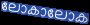
ലോകാലോക